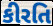
કીરતિ